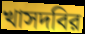
খাসদবির